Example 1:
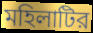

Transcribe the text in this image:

মহিলাটির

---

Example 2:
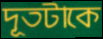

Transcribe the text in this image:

দূতটাকে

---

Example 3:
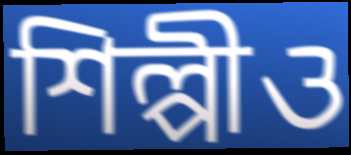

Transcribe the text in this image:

শিল্পীও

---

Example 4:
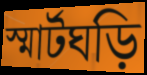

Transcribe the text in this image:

স্মার্টঘড়ি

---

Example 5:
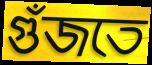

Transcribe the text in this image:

গুঁজতে